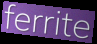
ferrite